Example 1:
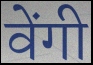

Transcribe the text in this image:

वेंगी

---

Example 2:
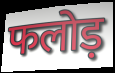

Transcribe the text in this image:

फलोड़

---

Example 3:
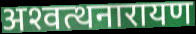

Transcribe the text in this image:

अश्वत्थनारायण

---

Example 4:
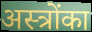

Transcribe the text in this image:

अस्त्रोंका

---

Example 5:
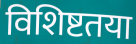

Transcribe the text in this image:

विशिष्टतया